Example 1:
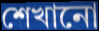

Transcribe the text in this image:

শেখানো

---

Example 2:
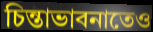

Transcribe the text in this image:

চিন্তাভাবনাতেও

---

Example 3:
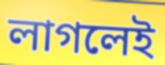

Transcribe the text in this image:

লাগলেই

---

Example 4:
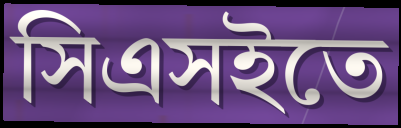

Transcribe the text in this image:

সিএসইতে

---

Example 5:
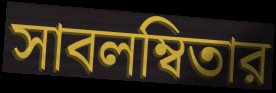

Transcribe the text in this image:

সাবলম্বিতার